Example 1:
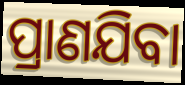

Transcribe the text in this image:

ପ୍ରାଣଯିବା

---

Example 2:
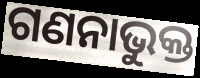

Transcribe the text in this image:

ଗଣନାଭୁକ୍ତ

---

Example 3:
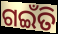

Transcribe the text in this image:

ଗଇଁତି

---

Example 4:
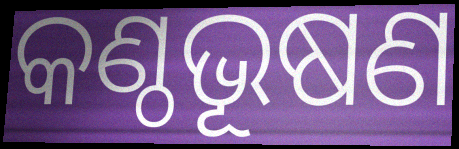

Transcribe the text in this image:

କଣ୍ଠଭୂଷଣ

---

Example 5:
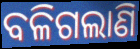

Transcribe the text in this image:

ବଳିଗଲାଣି